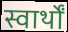
स्वार्थों